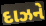
દાઝને